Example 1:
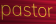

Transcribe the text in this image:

pastor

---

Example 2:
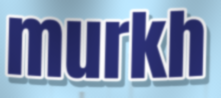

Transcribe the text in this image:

murkh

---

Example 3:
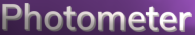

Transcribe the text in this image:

Photometer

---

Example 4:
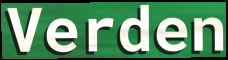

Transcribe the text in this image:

Verden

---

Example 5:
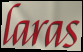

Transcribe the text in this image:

laras